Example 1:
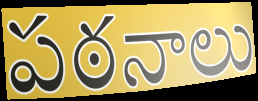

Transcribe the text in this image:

పఠనాలు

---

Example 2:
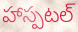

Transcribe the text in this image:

హాస్పటల్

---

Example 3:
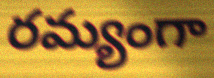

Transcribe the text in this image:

రమ్యంగా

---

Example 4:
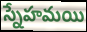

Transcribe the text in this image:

స్నేహమయి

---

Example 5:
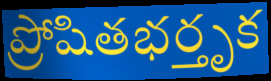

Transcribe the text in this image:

ప్రోషితభర్తృక